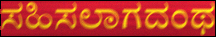
ಸಹಿಸಲಾಗದಂಥ